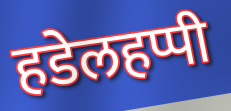
हडेलहप्पी